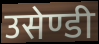
उसेण्डी